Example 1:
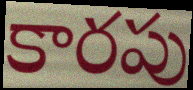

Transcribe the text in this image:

కారపు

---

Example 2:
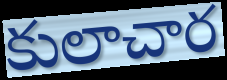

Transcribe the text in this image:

కులాచార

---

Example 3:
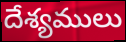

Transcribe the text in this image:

దేశ్యములు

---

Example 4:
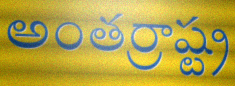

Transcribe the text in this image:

అంతర్రాష్ట్ర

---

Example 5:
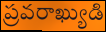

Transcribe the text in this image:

ప్రవరాఖ్యుడి